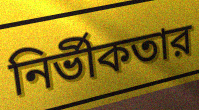
নির্ভীকতার